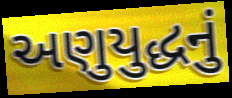
અણુયુદ્ધનું